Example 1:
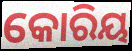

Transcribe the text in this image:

କୋରିୟ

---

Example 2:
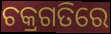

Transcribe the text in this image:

ଚକ୍ରଗତିରେ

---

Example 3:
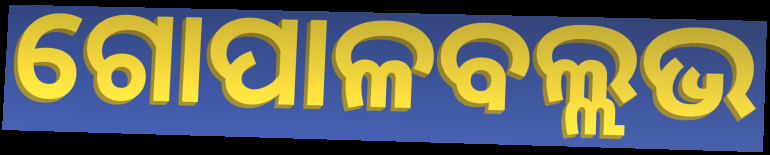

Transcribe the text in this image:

ଗୋପାଳବଲ୍ଲଭ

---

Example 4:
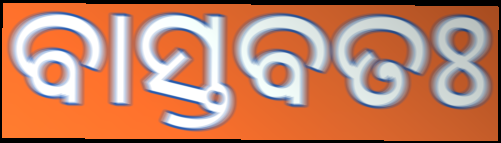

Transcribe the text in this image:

ବାସ୍ତବତଃ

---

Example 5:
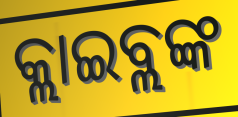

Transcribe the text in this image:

କ୍ଲାଇବ୍ଲଙ୍କ